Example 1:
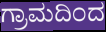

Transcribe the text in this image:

ಗ್ರಾಮದಿಂದ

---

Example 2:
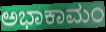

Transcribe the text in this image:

ಅಭಾಕಾಮಂ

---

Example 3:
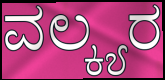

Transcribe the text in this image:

ವಲ್ಕ್ಯರ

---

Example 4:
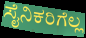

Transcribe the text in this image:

ಸೈನಿಕರಿಗೆಲ್ಲ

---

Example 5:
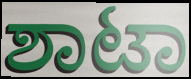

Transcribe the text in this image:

ಶಾಟಾ